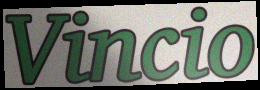
Vincio